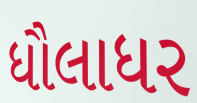
ધૌલાધર